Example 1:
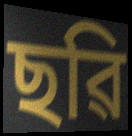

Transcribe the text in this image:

ছৱি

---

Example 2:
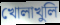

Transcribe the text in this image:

খোলাখুলি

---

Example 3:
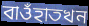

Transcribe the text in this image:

বাওঁহাতখন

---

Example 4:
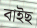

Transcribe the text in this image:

বাইছ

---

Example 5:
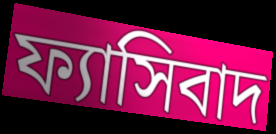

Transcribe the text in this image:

ফ্যাসিবাদ